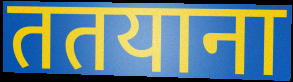
ततयाना